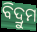
ବିଦ୍ରୁମ